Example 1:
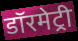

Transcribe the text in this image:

डॉरमेट्री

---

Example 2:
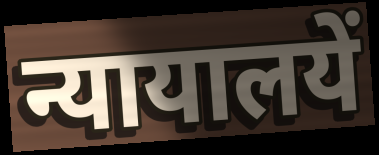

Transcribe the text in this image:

न्यायालयें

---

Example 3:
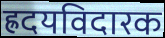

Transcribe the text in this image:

ह्रदयविदारक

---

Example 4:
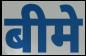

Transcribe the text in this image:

बीमे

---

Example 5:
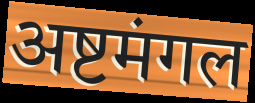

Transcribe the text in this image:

अष्टमंगल